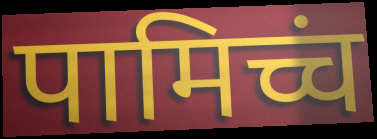
पामिच्चं